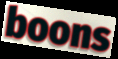
boons